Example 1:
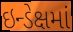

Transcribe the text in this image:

ઇન્ડેક્ષમાં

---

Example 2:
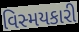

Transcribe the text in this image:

વિસ્મયકારી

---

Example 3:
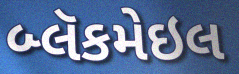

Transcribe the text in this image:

બ્લૅકમેઇલ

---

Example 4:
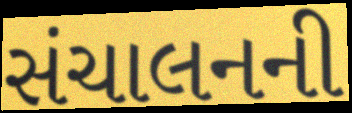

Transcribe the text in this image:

સંચાલનની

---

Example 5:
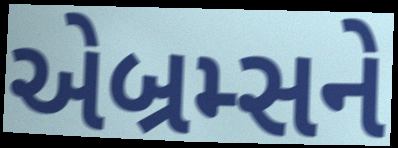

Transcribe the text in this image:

એબ્રમ્સને